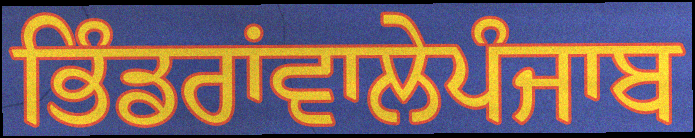
ਭਿੰਡਰਾਂਵਾਲੇਪੰਜਾਬ